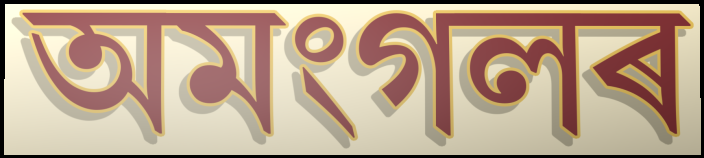
অমংগলৰ